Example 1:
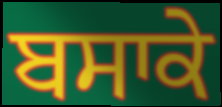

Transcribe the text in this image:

ਬਸਾਕੇ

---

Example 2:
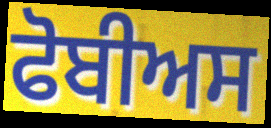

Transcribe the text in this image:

ਫੋਬੀਅਸ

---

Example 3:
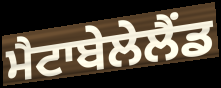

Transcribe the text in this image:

ਮੈਟਾਬੇਲੇਲੈਂਡ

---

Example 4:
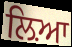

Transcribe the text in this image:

ਲ਼ਿਆ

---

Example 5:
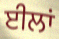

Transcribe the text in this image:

ਈਲਾਂ